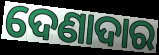
ଦେଣାଦାର